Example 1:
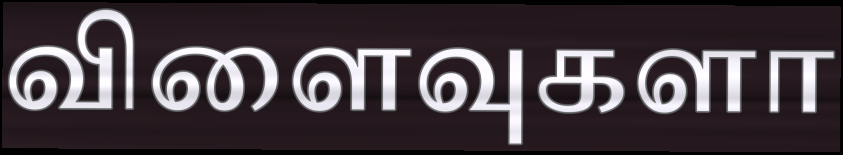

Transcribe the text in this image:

விளைவுகளா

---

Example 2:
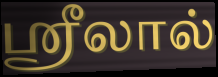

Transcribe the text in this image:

ஸ்ரீலால்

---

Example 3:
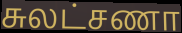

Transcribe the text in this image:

சுலட்சணா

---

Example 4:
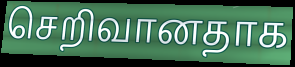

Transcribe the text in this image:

செறிவானதாக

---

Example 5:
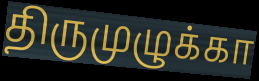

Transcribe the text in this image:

திருமுழுக்கா